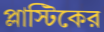
প্লাস্টিকের